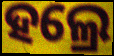
ହଲ୍ରେ